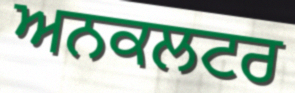
ਅਨਕਲਟਰ